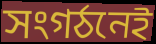
সংগঠনেই